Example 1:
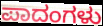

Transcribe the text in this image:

ಪಾದಂಗಳು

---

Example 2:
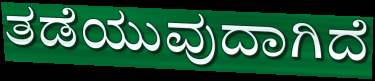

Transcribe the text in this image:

ತಡೆಯುವುದಾಗಿದೆ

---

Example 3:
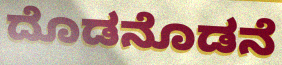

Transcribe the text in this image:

ದೊಡನೊಡನೆ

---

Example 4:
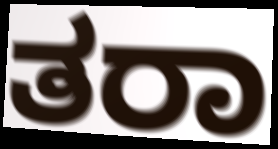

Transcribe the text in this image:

ತರಾ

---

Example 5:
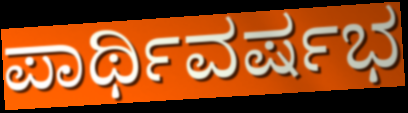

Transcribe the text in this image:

ಪಾರ್ಥಿವರ್ಷಭ